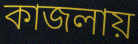
কাজলায়